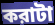
করাটা